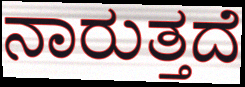
ನಾರುತ್ತದೆ